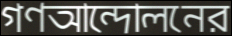
গণআন্দোলনের